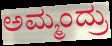
ಅಮ್ಮಂದ್ರು